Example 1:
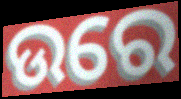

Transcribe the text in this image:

ଉରେ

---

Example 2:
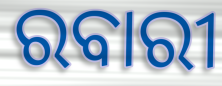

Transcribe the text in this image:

ରବାରୀ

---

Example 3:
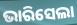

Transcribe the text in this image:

ଭାରିସେଲା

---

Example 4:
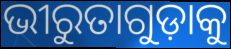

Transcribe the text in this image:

ଭୀରୁତାଗୁଡ଼ାକୁ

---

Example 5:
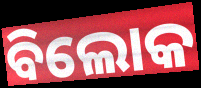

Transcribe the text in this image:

ବିଲୋକ